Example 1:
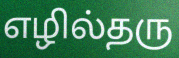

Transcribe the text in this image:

எழில்தரு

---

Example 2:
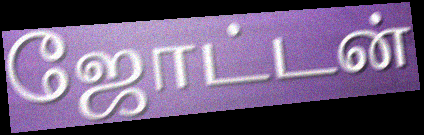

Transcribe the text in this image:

ஜோட்டன்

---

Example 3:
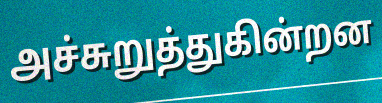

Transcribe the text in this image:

அச்சுறுத்துகின்றன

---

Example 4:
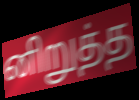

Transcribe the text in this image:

னிறுத்த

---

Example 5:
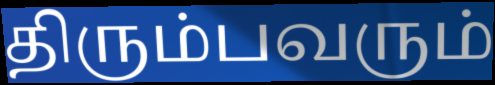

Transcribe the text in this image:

திரும்பவரும்